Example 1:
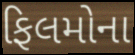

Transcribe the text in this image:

ફિલમોના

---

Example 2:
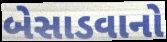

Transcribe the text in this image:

બેસાડવાનો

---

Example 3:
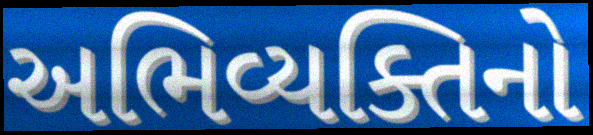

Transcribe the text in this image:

અભિવ્યક્તિનો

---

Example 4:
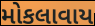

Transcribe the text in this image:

મોકલાવાય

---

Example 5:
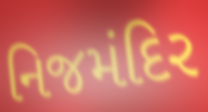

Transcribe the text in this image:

નિજમંદિર